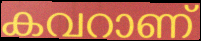
കവറാണ്